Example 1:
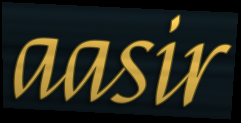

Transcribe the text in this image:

aasir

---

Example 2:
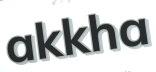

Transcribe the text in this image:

akkha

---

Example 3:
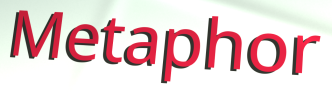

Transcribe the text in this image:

Metaphor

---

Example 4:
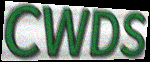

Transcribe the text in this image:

CWDS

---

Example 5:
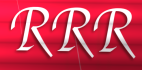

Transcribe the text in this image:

RRR